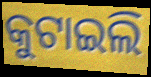
କୁଟାଇଲି